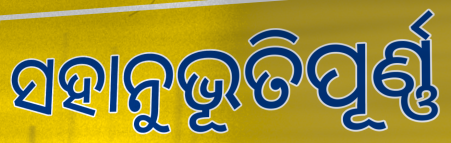
ସହାନୁଭୂତିପୂର୍ଣ୍ଣ